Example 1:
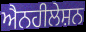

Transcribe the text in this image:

ਐਨਹੀਲੇਸ਼ਨ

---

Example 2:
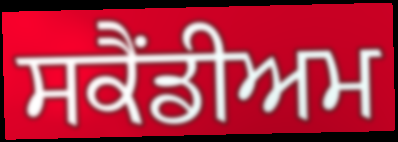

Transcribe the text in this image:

ਸਕੈਂਡੀਅਮ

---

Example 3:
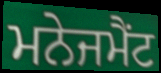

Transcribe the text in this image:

ਮਨੇਜਮੈਂਟ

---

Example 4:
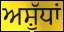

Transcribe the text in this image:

ਅਸ਼ੁੱਧਾਂ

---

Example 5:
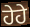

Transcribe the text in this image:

ਹੇਹੇ